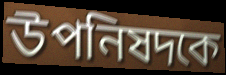
উপনিষদকে